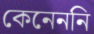
কেনেননি